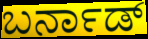
ಬರ್ನಾಡ್